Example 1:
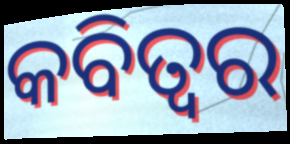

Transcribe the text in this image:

କବିତ୍ଵର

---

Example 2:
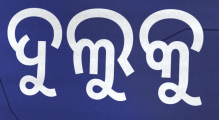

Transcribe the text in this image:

ଦୁଲୁକୁ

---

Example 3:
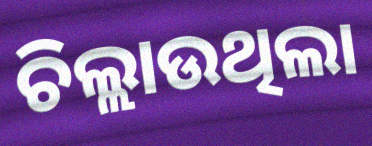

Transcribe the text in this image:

ଚିଲ୍ଲାଉଥିଲା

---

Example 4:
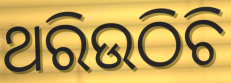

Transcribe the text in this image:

ଥରିଉଠିଚି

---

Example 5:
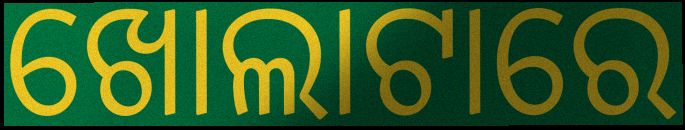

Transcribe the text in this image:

ଖୋଲାଟାରେ